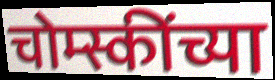
चोम्स्कींच्या